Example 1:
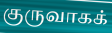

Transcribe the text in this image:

குருவாகக்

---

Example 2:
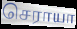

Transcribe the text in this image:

செராயா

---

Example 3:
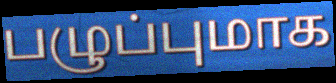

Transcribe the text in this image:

பழுப்புமாக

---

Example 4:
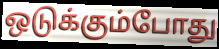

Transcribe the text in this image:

ஒடுக்கும்போது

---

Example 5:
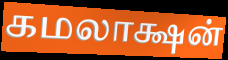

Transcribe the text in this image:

கமலாக்ஷன்